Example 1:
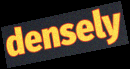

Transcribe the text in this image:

densely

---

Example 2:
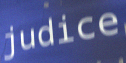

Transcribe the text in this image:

judice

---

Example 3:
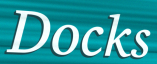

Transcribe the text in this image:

Docks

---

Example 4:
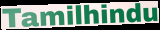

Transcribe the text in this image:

Tamilhindu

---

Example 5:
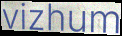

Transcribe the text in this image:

vizhum